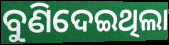
ବୁଣିଦେଇଥିଲା